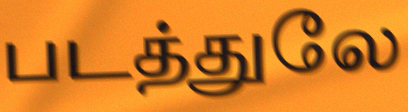
படத்துலே